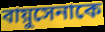
বায়ুসেনাকে